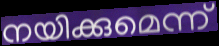
നയിക്കുമെന്ന്